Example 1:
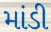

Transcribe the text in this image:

માંડી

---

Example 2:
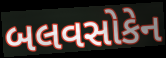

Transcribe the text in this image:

બલવસોકેન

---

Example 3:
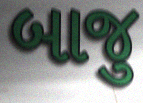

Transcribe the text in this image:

બાજુ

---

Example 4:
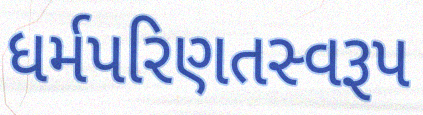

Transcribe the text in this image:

ધર્મપરિણતસ્વરૂપ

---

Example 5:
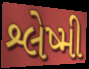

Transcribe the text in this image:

શ્લેષ્મી